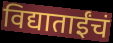
विद्याताईंचं